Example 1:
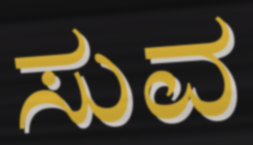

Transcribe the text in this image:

ಸುವ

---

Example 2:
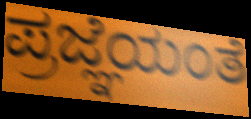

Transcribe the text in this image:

ಪ್ರಜ್ಞೆಯಂತೆ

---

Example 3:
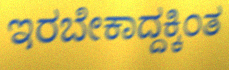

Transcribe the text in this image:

ಇರಬೇಕಾದ್ದಕ್ಕಿಂತ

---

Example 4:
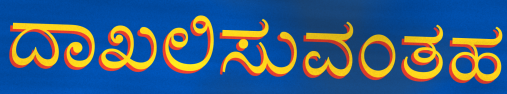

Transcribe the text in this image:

ದಾಖಲಿಸುವಂತಹ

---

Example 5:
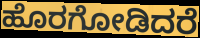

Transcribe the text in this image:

ಹೊರಗೋಡಿದರೆ